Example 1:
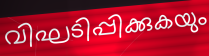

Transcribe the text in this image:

വിഘടിപ്പിക്കുകയും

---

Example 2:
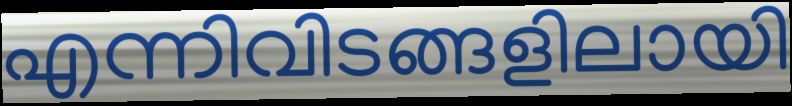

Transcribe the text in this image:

എന്നിവിടങ്ങളിലായി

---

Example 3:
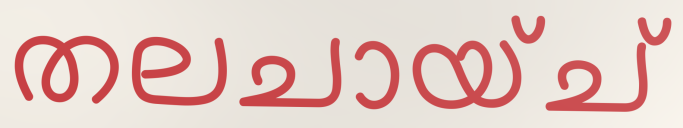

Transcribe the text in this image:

തലചായ്ച്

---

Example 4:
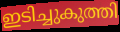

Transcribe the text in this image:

ഇടിച്ചുകുത്തി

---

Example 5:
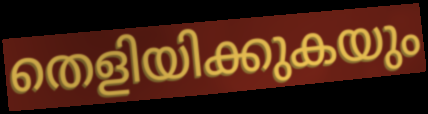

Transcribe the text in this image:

തെളിയിക്കുകയും